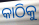
କାଠିକୁ